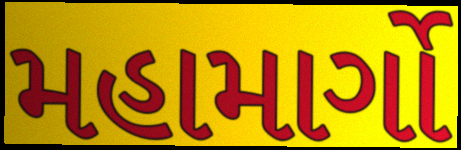
મહામાર્ગો